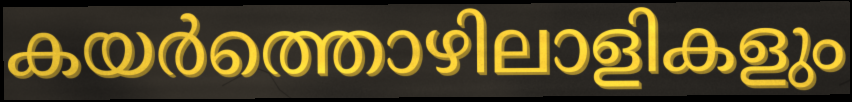
കയർത്തൊഴിലാളികളും